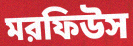
মরফিউস